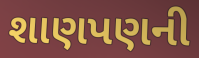
શાણપણની